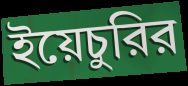
ইয়েচুরির